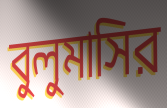
বুলুমাসির